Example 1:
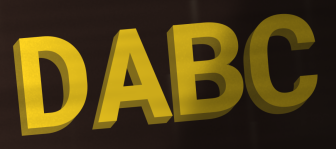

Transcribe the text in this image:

DABC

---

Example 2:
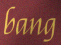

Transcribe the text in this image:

bang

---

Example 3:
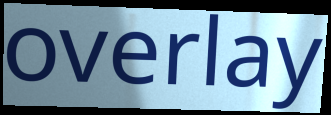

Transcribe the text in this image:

overlay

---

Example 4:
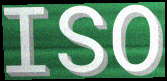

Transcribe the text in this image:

ISO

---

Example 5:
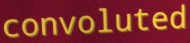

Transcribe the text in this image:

convoluted